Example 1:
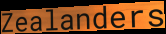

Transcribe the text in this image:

Zealanders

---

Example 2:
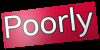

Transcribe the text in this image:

Poorly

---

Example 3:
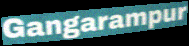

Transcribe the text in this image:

Gangarampur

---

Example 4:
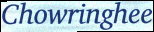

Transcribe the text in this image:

Chowringhee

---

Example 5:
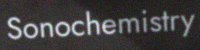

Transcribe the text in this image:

Sonochemistry